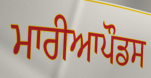
ਮਾਰੀਆਪੌਡਸ